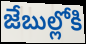
జేబుల్లోకి